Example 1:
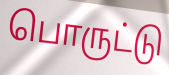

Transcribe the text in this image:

பொருட்டு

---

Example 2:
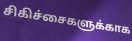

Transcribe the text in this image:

சிகிச்சைகளுக்காக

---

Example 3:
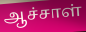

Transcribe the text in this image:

ஆச்சாள்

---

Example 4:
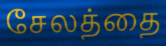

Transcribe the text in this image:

சேலத்தை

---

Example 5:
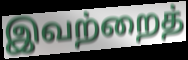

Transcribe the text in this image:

இவற்றைத்